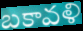
బకావళి